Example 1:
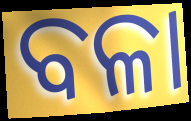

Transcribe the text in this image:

ବଳା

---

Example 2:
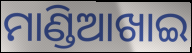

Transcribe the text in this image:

ମାଣ୍ଡିଆଖାଇ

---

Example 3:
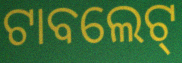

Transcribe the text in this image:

ଟାବଲେଟ୍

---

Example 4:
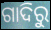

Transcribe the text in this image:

ଗାଦିରୁ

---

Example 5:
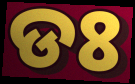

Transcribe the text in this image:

ଡଃ